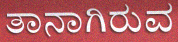
ತಾನಾಗಿರುವ